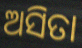
ଅସିତା